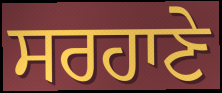
ਸਰਹਾਣੇ